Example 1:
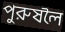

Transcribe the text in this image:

পুৰুষলৈ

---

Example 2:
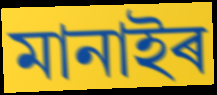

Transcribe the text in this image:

মানাইৰ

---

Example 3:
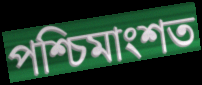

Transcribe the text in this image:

পশ্চিমাংশত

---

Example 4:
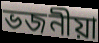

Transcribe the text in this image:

ভজনীয়া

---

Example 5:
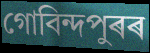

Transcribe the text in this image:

গোবিন্দপুৰৰ